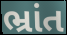
ભ્રાંત